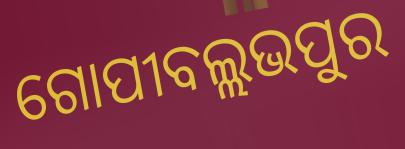
ଗୋପୀବଲ୍ଲଭପୁର